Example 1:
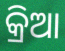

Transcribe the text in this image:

କ୍ରିଆ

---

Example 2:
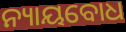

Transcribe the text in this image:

ନ୍ୟାୟବୋଧ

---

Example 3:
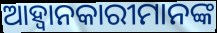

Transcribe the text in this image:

ଆହ୍ଵାନକାରୀମାନଙ୍କ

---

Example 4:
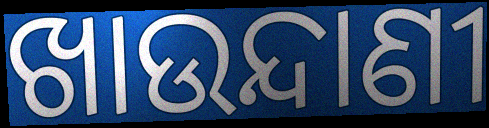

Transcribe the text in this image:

ଖାଉନ୍ଦାଣୀ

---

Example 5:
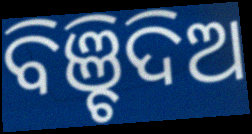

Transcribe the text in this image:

ବିଞ୍ଚିଦିଅ